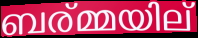
ബര്മ്മയില്